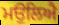
ਮਉਲਿਐ